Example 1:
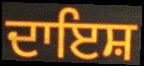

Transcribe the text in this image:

ਦਾਇਸ਼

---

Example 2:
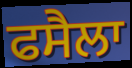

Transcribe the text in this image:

ਫਸੈਲਾ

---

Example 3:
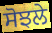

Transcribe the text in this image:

ਸੋਝਲੇ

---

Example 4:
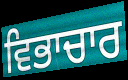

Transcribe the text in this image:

ਵਿਭਾਚਾਰ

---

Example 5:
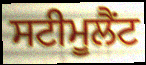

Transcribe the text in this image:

ਸਟੀਮੂਲੈਂਟ